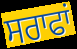
ਸਰਾਫਾਂ